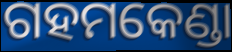
ଗହମକେଣ୍ଡା